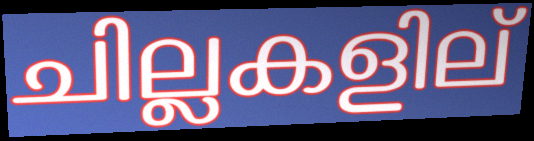
ചില്ലകളില്